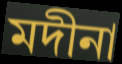
মদীনা